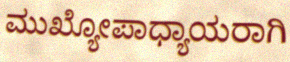
ಮುಖ್ಯೋಪಾಧ್ಯಾಯರಾಗಿ